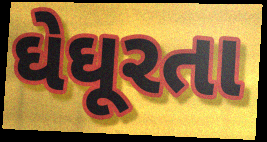
ઘેઘૂરતા